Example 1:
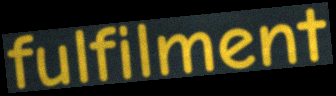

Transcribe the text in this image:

fulfilment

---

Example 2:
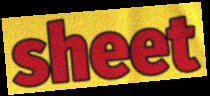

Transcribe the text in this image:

sheet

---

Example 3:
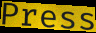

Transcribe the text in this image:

Press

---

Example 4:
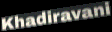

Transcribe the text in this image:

Khadiravani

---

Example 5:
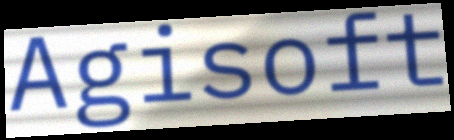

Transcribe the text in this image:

Agisoft